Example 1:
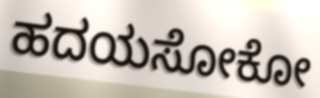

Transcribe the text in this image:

ಹದಯಸೋಕೋ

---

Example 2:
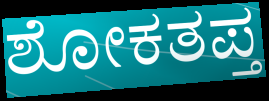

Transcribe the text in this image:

ಶೋಕತಪ್ತ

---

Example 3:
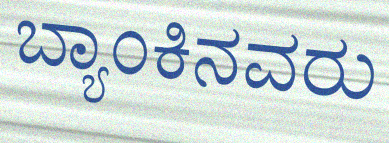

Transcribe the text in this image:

ಬ್ಯಾಂಕಿನವರು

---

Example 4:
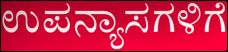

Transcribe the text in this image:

ಉಪನ್ಯಾಸಗಳಿಗೆ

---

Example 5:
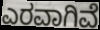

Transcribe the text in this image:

ಎರವಾಗಿವೆ